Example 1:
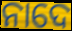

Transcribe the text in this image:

ନାଦେ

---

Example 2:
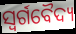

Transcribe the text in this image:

ସ୍ୱର୍ଗବୈଦ୍ୟ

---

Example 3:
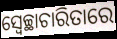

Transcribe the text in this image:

ସ୍ୱେଚ୍ଛାଚାରିତାରେ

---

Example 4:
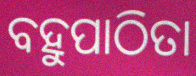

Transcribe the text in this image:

ବହୁପାଠିତା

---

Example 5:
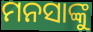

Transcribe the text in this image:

ମନସାଙ୍କୁ